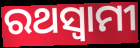
ରଥସ୍ୱାମୀ